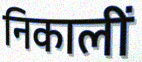
निकालीं